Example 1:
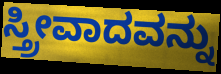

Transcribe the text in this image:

ಸ್ತ್ರೀವಾದವನ್ನು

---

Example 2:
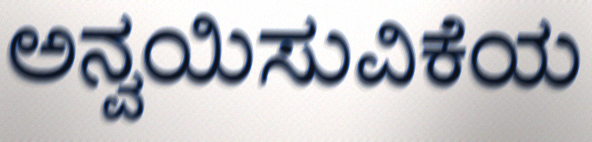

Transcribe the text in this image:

ಅನ್ವಯಿಸುವಿಕೆಯ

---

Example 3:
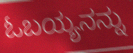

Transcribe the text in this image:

ಓಬಯ್ಯನನ್ನು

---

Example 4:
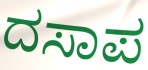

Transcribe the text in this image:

ದಸಾಪ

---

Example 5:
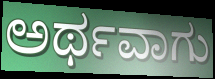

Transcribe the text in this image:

ಅರ್ಥವಾಗು